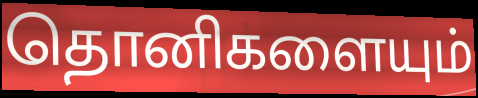
தொனிகளையும்